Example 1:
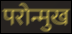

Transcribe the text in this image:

परोन्मुख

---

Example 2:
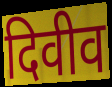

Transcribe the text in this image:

दिवीव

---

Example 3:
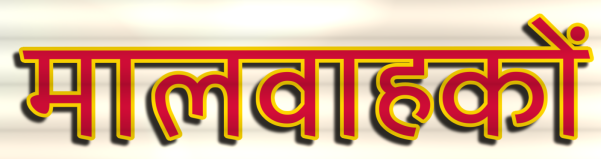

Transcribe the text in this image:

मालवाहकों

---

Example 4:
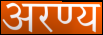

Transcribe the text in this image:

अरण्य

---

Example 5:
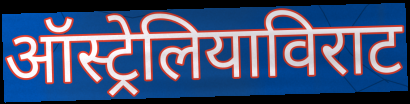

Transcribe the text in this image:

ऑस्ट्रेलियाविराट